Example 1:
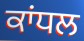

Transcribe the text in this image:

ਕਾਂਧਲ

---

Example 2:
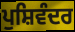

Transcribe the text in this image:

ਪੁਸ਼ਿਵੰਦਰ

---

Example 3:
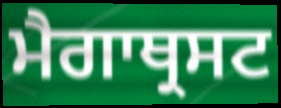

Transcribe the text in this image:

ਮੈਗਾਥ੍ਰਸਟ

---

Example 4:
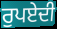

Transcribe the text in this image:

ਰੁਪਏਦੀ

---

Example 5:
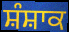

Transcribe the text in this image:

ਸ਼ੰਸ਼ਾਕ